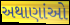
અથાણાંઓ